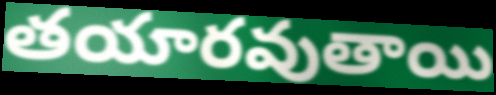
తయారవుతాయి